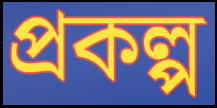
প্ৰকল্প